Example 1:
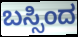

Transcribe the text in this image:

ಬಸ್ಸಿಂದ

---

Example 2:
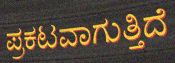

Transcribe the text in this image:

ಪ್ರಕಟವಾಗುತ್ತಿದೆ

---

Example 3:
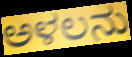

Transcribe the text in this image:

ಅಳಲನು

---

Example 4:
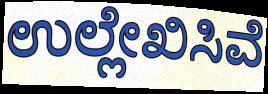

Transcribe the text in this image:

ಉಲ್ಲೇಖಿಸಿವೆ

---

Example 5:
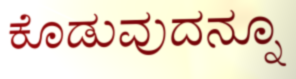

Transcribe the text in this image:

ಕೊಡುವುದನ್ನೂ